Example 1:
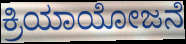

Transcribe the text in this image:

ಕ್ರಿಯಾಯೋಜನೆ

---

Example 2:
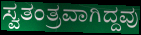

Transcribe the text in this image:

ಸ್ವತಂತ್ರವಾಗಿದ್ದವು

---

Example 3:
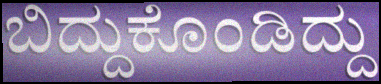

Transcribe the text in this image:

ಬಿದ್ದುಕೊಂಡಿದ್ದು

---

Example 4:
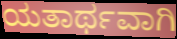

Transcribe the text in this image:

ಯತಾರ್ಥವಾಗಿ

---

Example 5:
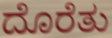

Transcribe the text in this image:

ದೊರೆತು